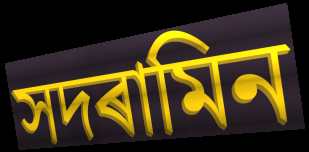
সদৰামিন